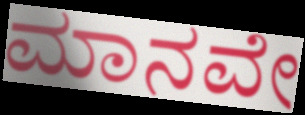
ಮಾನವೇ